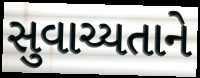
સુવાચ્યતાને